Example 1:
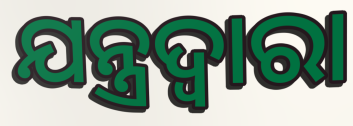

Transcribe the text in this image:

ଯନ୍ତ୍ରଦ୍ଵାରା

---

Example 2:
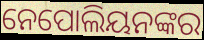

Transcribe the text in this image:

ନେପୋଲିୟନଙ୍କର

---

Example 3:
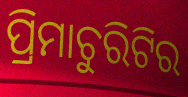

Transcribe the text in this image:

ପ୍ରିମାଚୁରିଟିର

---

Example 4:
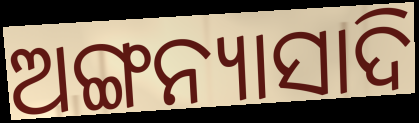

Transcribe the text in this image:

ଅଙ୍ଗନ୍ୟାସାଦି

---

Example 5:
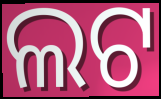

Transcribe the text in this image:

ଲଟ